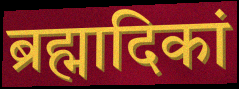
ब्रह्मादिकां